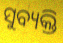
ସୁବ୍ୟକ୍ତି